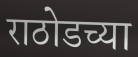
राठोडच्या